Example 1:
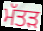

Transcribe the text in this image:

ਮੱਤੜ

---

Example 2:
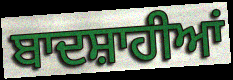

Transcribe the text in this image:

ਬਾਦਸ਼ਾਹੀਆਂ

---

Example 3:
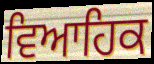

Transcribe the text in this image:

ਵਿਆਹਿਕ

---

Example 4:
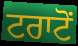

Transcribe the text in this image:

ਟਰਾਟੋਂ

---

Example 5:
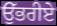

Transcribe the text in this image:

ਉੱਭਰੀਏ